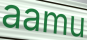
aamu